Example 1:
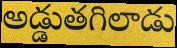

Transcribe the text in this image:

అడ్డుతగిలాడు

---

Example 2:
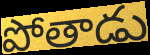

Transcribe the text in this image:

పోతాడు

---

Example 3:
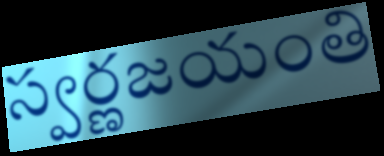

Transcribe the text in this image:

స్వర్ణజయంతి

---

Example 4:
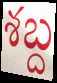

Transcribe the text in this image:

శబ్ద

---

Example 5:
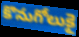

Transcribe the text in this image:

కొనుగోలుకై